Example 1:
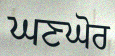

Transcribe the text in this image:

ਘਣਘੋਰ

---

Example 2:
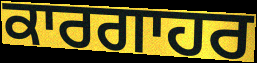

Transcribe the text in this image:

ਕਾਰਗਾਹਰ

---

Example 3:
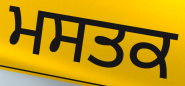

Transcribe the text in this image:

ਮਸਤਕ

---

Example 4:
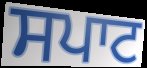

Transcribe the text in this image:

ਸਪਾਟ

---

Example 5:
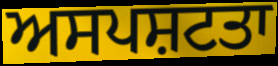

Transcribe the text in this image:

ਅਸਪਸ਼ਟਤਾ